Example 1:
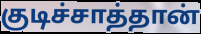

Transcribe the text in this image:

குடிச்சாத்தான்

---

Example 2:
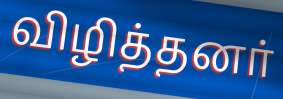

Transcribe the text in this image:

விழித்தனர்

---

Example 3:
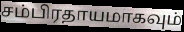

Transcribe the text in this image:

சம்பிரதாயமாகவும்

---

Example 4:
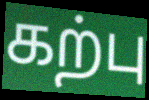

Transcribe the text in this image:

கற்பு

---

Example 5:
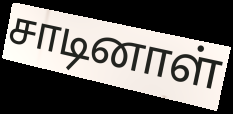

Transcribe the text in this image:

சாடினாள்